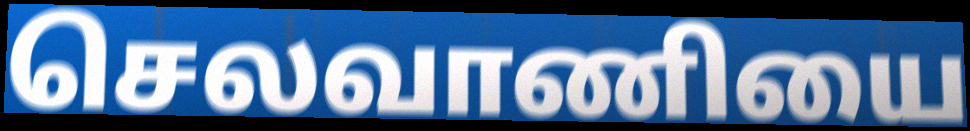
செலவாணியை